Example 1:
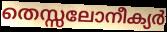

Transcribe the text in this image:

തെസ്സലോനീക്യർ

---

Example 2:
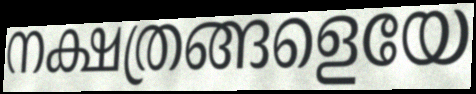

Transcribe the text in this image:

നക്ഷത്രങ്ങളെയേ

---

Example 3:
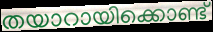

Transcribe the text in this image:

തയാറായിക്കൊണ്ട്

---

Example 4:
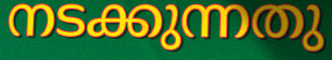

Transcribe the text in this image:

നടക്കുന്നതു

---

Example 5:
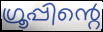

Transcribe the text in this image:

ഗ്രൂപ്പിന്റെ